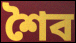
শৈব